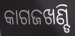
କାଗଜଖଣ୍ଡି